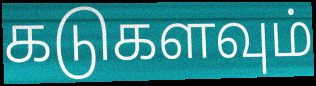
கடுகளவும்